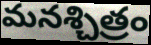
మనశ్చిత్రం